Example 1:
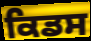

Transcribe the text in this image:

ਕਿਡਸ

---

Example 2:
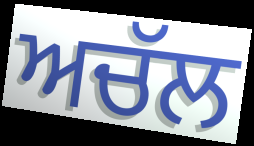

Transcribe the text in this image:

ਅਚੱਲ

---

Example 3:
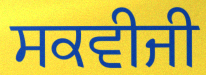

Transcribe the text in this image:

ਸਕਵੀਜੀ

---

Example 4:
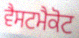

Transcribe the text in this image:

ਵੈਸਟਮੈਕੋਟ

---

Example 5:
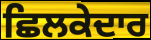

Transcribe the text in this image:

ਛਿਲਕੇਦਾਰ